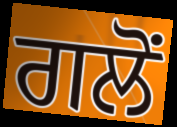
ਗਲੋਂ